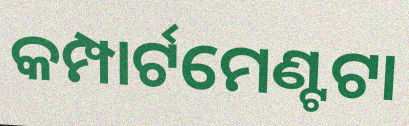
କମ୍ପାର୍ଟମେଣ୍ଟଟା